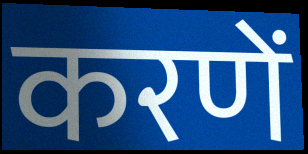
करणें